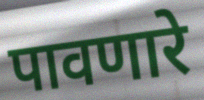
पावणारे